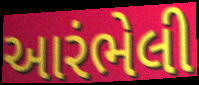
આરંભેલી